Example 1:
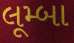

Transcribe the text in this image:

લૂમ્બા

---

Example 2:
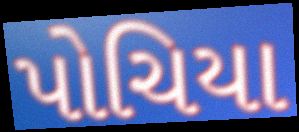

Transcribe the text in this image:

પોચિયા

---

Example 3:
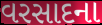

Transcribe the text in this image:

વરસાદના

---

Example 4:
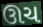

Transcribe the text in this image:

ઊચ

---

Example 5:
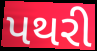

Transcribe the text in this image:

પથરી